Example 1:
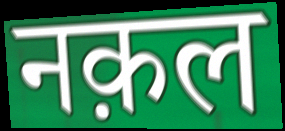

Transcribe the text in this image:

नक़ल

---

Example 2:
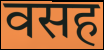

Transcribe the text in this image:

वसह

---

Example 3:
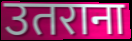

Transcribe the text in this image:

उतराना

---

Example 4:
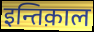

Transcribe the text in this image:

इन्तिक़ाल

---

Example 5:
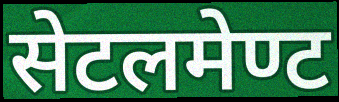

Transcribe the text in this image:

सेटलमेण्ट